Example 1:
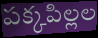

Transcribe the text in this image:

పక్కపిల్లల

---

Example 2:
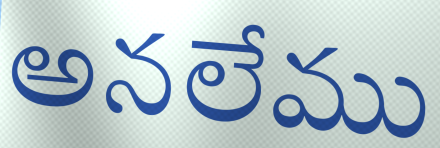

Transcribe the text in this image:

అనలేము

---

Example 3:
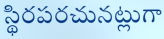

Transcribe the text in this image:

స్థిరపరచునట్లుగా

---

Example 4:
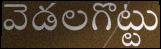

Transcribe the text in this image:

వెడలగొట్టు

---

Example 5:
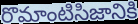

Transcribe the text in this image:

రొమాంటిసిజానికి